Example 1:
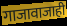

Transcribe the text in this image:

गाजावाजाही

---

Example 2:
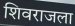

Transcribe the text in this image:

शिवराजला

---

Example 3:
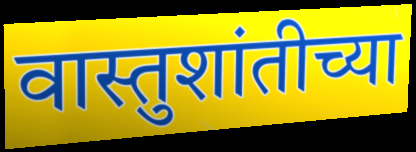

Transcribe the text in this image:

वास्तुशांतीच्या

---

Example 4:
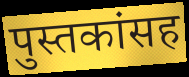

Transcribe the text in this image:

पुस्तकांसह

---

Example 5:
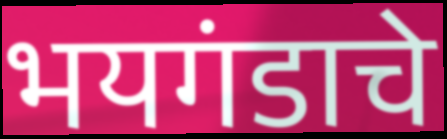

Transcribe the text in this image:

भयगंडाचे